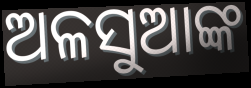
ଅଳସୁଆଙ୍କ